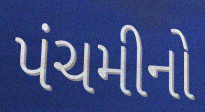
પંચમીનો